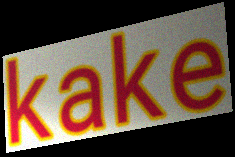
kake